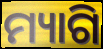
ମ୍ୟାଗି